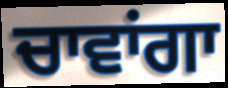
ਚਾਵਾਂਗਾ